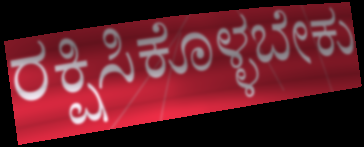
ರಕ್ಷಿಸಿಕೊಳ್ಳಬೇಕು